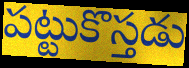
పట్టుకొస్తడు